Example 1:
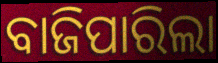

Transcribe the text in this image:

ବାଜିପାରିଲା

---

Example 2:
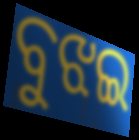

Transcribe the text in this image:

ବୁଝଇ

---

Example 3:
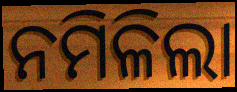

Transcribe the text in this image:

ନମିଳିଲା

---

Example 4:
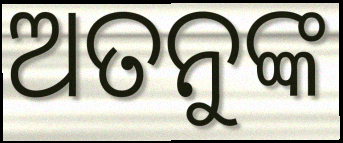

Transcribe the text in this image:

ଅତନୁଙ୍କ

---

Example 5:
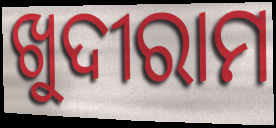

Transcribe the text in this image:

ଖୁଦୀରାମ